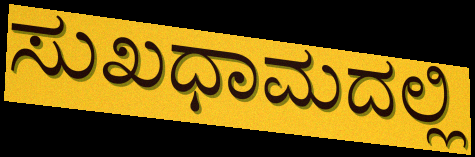
ಸುಖಧಾಮದಲ್ಲಿ